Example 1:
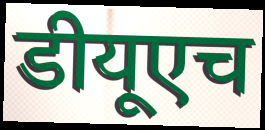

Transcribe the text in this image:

डीयूएच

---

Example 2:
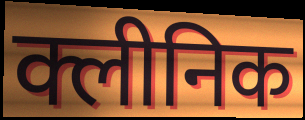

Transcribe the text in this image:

क्‍लीनिक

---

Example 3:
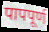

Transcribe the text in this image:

पापपूर्ण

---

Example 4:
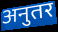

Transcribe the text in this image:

अनुतर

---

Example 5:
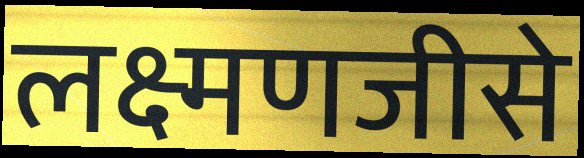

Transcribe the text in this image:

लक्ष्मणजीसे